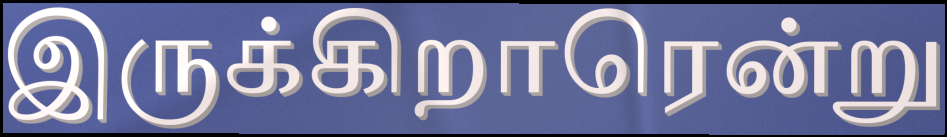
இருக்கிறாரென்று